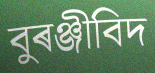
বুৰঞ্জীবিদ